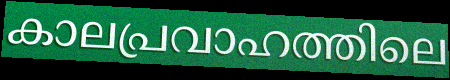
കാലപ്രവാഹത്തിലെ